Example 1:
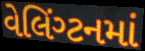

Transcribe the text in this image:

વેલિંગ્ટનમાં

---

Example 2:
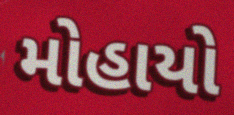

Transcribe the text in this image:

મોહાયો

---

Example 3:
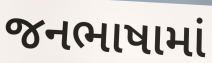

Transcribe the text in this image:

જનભાષામાં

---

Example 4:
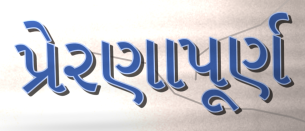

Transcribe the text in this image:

પ્રેરણાપૂર્ણ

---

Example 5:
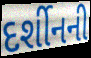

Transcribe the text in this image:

દર્શીનની